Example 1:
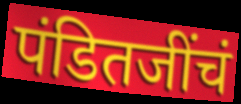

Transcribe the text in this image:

पंडितजींचं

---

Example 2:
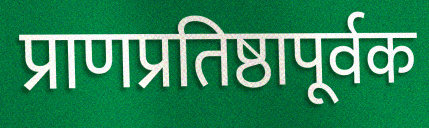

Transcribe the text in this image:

प्राणप्रतिष्ठापूर्वक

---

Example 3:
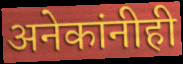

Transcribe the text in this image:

अनेकांनीही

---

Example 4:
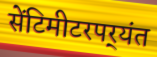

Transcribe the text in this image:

सेंटिमीटरपर्यंत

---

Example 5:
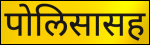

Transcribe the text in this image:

पोलिसासह